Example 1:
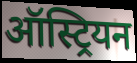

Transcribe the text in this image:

ऑस्ट्रियन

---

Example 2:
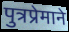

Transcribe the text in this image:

पुत्रप्रेमाने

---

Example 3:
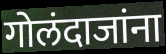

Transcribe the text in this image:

गोलंदाजांना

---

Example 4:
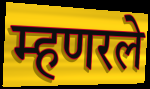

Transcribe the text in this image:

म्हणरले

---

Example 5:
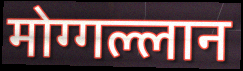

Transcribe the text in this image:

मोग्गल्लान